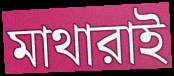
মাথারাই